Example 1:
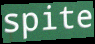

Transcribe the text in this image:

spite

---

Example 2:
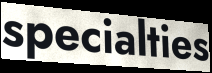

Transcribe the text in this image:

specialties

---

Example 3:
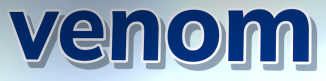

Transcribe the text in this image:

venom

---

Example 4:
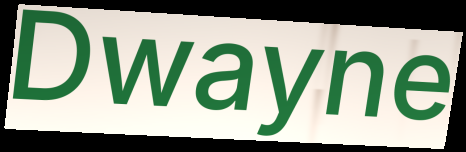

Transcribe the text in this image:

Dwayne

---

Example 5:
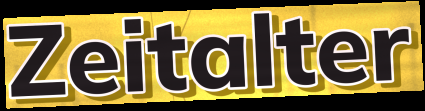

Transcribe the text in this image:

Zeitalter